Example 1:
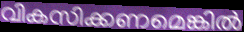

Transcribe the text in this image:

വികസിക്കണമെങ്കിൽ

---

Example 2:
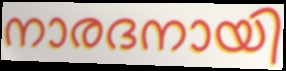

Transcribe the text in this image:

നാരദനായി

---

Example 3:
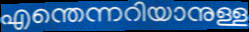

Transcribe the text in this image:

എന്തെന്നറിയാനുള്ള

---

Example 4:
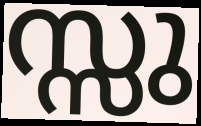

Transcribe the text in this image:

സ്സു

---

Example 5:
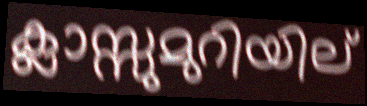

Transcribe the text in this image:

ക്ലാസ്സുമുറിയില്